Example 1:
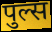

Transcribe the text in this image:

पुल्स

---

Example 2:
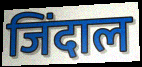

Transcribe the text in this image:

जिंदाल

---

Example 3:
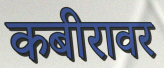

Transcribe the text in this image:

कबीरावर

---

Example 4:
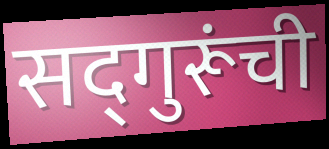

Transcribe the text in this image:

सद्‌गुरूंची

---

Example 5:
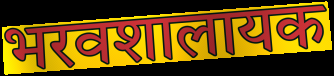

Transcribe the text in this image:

भरवशालायक